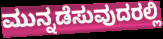
ಮುನ್ನಡೆಸುವುದರಲ್ಲಿ